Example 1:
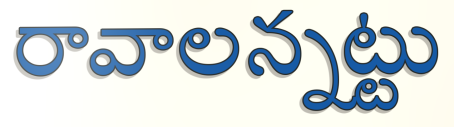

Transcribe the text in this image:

రావాలన్నట్టు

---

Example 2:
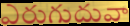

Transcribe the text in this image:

ఎరుగుదువా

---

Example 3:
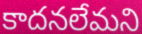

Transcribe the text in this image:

కాదనలేమని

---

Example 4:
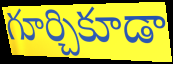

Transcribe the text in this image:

గూర్చికూడా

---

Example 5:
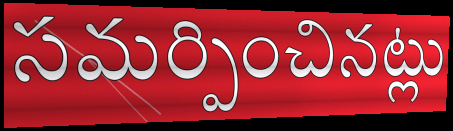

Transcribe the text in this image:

సమర్పించినట్లు